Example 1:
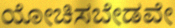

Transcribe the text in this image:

ಯೋಚಿಸಬೇಡವೇ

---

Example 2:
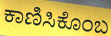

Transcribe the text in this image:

ಕಾಣಿಸಿಕೊಂಬ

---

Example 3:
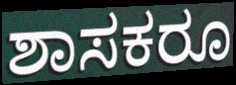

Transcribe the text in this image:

ಶಾಸಕರೂ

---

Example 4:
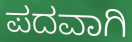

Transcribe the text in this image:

ಪದವಾಗಿ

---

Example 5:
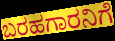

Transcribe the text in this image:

ಬರಹಗಾರನಿಗೆ